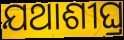
ଯଥାଶୀଘ୍ର